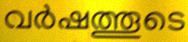
വർഷത്തൂടെ